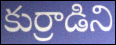
కుర్రాడిని